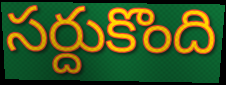
సర్దుకొంది